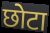
छोटा